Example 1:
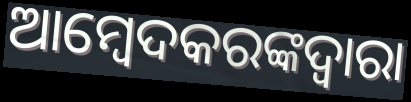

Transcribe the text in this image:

ଆମ୍ବେଦକରଙ୍କଦ୍ୱାରା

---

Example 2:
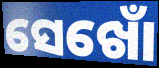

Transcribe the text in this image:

ସେଖୋଁ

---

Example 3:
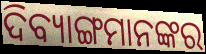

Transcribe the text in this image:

ଦିବ୍ୟାଙ୍ଗମାନଙ୍କର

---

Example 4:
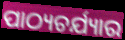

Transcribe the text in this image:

ପାଠ୍ୟଚର୍ଯ୍ୟାର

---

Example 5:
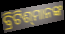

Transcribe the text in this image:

ବ୍ରିଟିଶ୍‌ମାନଙ୍କ